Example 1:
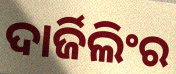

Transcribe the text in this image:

ଦାର୍ଜିଲିଂର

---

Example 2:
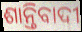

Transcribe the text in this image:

ଶାନ୍ତିବାଦୀ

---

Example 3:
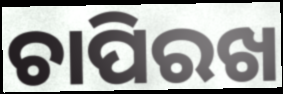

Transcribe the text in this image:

ଚାପିରଖ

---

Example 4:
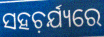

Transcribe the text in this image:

ସହଚ଼ର୍ଯ୍ୟରେ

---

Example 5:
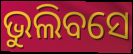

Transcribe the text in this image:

ଭୁଲିବସେ